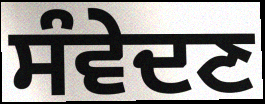
ਸੰਵੇਦਣ